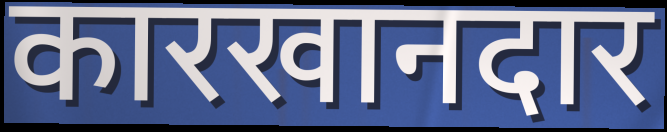
कारखानदार